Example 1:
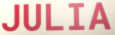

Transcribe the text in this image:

JULIA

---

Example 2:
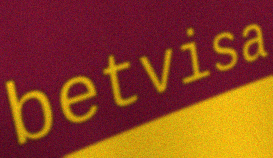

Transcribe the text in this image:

betvisa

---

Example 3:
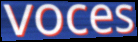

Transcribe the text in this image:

voces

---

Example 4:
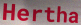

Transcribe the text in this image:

Hertha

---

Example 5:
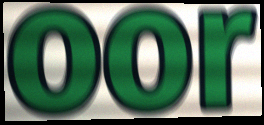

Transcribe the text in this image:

oor